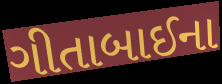
ગીતાબાઈના